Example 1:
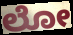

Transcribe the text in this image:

ಲೋ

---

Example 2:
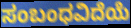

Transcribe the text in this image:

ಸಂಬಂಧವಿದೆಯೆ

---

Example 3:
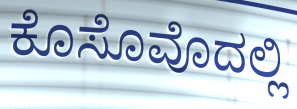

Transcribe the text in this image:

ಕೊಸೊವೊದಲ್ಲಿ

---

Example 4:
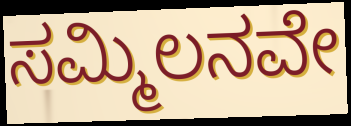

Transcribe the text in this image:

ಸಮ್ಮಿಲನವೇ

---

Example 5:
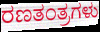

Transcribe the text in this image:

ರಣತಂತ್ರಗಳು